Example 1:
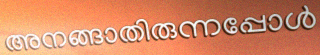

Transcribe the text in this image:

അനങ്ങാതിരുന്നപ്പോൾ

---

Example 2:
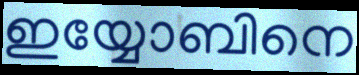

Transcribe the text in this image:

ഇയ്യോബിനെ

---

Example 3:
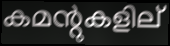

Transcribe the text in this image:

കമന്റുകളില്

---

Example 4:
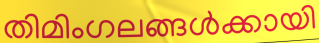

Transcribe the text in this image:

തിമിംഗലങ്ങൾക്കായി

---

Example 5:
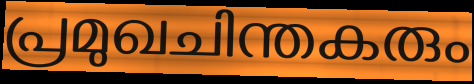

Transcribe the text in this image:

പ്രമുഖചിന്തകരും